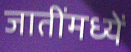
जातींमध्यें